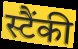
स्टैंकी